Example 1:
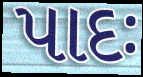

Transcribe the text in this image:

પાદઃ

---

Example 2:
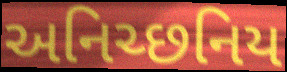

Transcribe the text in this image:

અનિચ્છનિય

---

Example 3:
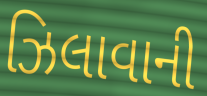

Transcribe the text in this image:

ઝિલાવાની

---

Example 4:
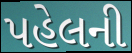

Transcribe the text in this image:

પહેલની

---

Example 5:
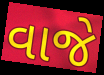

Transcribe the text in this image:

વાજે